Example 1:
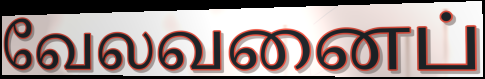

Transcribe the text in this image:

வேலவனைப்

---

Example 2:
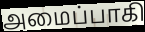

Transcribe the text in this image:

அமைப்பாகி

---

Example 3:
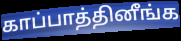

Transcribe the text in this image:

காப்பாத்தினீங்க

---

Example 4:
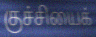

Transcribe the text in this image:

குச்சியைக்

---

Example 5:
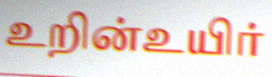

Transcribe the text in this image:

உறின்உயிர்